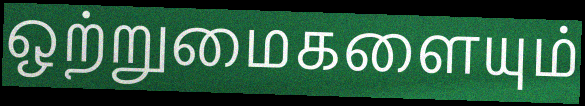
ஒற்றுமைகளையும்